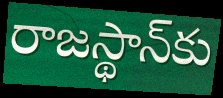
రాజస్థాన్‌కు